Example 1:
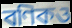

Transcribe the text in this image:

বণিকও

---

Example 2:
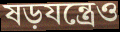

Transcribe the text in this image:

ষড়যন্ত্রেও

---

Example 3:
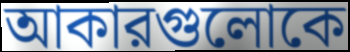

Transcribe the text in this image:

আকারগুলোকে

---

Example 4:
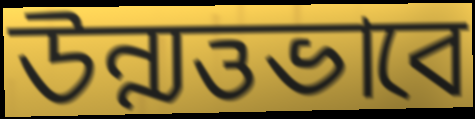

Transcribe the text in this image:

উন্মত্তভাবে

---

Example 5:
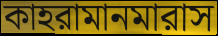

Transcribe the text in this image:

কাহরামানমারাস